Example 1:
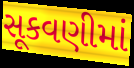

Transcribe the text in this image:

સૂકવણીમાં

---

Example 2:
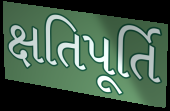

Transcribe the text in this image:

ક્ષતિપૂર્તિ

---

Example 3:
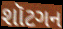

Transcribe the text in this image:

શૉટગન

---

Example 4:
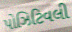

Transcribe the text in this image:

પોઝિટિવલી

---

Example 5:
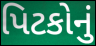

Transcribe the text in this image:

પિટકોનું